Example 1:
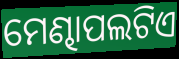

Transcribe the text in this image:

ମେଣ୍ଢାପଲଟିଏ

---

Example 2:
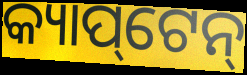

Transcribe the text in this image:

କ୍ୟାପ୍‌ଟେନ୍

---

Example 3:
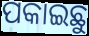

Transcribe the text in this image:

ପକାଇଛୁ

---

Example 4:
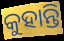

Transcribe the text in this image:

କୁହାନ୍ତି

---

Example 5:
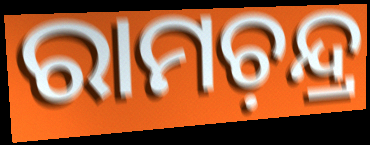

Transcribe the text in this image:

ରାମଚ଼ନ୍ଦ୍ର